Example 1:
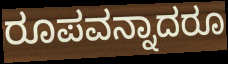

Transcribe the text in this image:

ರೂಪವನ್ನಾದರೂ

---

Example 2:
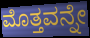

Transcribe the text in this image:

ಮೊತ್ತವನ್ನೇ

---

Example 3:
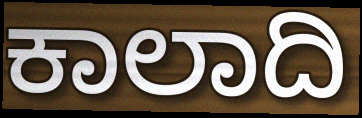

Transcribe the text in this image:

ಕಾಲಾದಿ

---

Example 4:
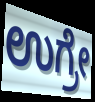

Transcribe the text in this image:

ಉಗ್ರೇ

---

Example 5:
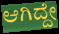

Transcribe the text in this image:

ಆಗಿದ್ದೇ